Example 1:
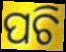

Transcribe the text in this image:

ପଚି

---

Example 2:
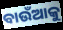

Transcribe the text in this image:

ବାଉଁଆକୁ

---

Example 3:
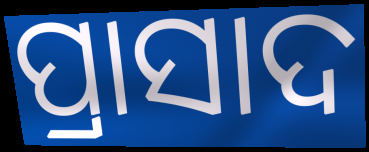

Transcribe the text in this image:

ପ୍ରାସାଦ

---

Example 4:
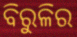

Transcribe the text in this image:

ବିରୁଳିର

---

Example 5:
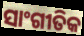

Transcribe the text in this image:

ସାଂଗୀତିକ